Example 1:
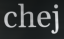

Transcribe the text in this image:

chej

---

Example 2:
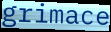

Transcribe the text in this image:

grimace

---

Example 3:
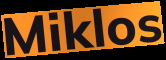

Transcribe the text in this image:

Miklos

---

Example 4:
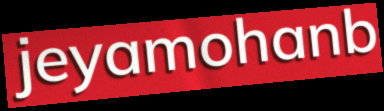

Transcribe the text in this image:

jeyamohanb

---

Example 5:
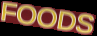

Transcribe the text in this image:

FOODS